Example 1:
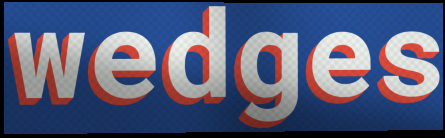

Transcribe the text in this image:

wedges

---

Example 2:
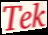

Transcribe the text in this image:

Tek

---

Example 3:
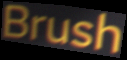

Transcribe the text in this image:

Brush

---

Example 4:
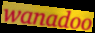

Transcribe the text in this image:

wanadoo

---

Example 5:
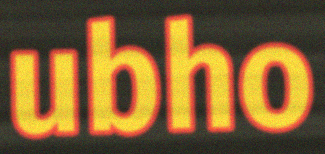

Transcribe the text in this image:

ubho